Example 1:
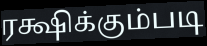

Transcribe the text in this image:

ரக்ஷிக்கும்படி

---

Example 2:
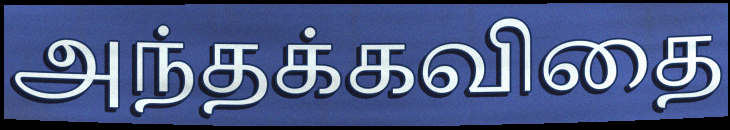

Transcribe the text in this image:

அந்தக்கவிதை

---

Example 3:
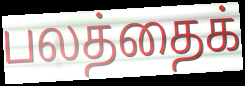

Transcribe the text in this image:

பலத்தைக்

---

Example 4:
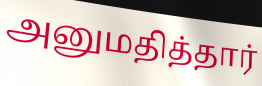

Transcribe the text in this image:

அனுமதித்தார்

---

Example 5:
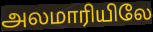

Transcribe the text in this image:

அலமாரியிலே